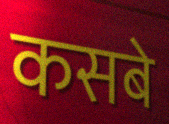
कसबे